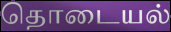
தொடையல்